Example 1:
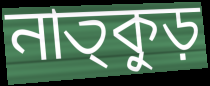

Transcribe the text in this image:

নাত্কুড়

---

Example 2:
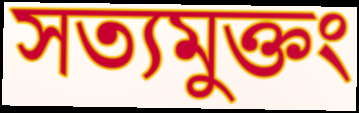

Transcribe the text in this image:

সত্যমুক্তং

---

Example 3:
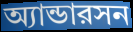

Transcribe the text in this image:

অ্যান্ডারসন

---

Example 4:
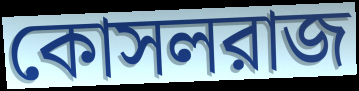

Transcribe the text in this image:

কোসলরাজ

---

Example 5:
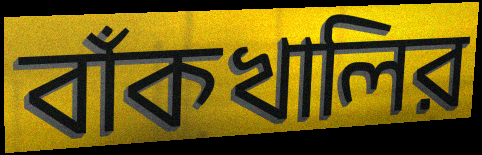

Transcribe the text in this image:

বাঁকখালির